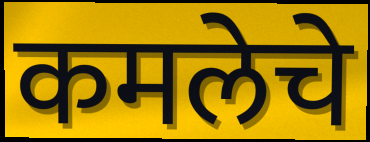
कमलेचे